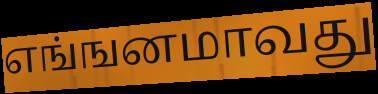
எங்ஙனமாவது